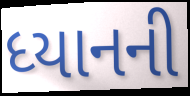
ધ્યાનની